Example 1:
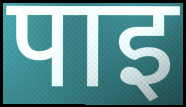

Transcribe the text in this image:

पाइ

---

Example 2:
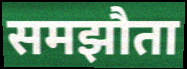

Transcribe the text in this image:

समझौता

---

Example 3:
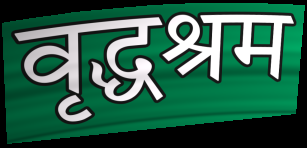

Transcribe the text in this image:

वृद्धश्रम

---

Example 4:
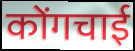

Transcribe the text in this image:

कोंगचाई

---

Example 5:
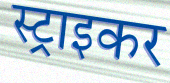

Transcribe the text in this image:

स्ट्राइकर